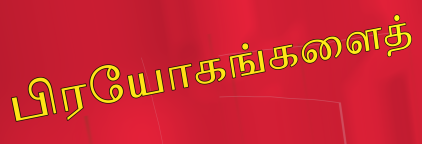
பிரயோகங்களைத்